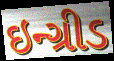
ઇન્ગ્રીડ